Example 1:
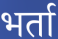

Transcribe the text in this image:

भर्ता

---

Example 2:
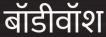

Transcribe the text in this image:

बॉडीवॉश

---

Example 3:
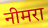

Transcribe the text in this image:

नीमरा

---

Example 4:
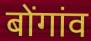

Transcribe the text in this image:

बोंगांव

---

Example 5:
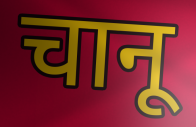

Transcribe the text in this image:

चानू